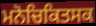
ਮਨੋਚਿਕਿਤਸਕ